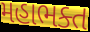
મહાભક્ત